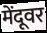
मेंदूवर